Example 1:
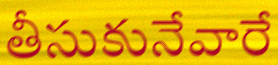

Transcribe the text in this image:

తీసుకునేవారే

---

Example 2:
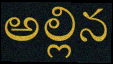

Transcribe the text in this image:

అల్లిన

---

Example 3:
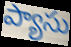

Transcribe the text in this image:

ప్యాసు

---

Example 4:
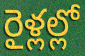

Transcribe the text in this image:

రైళ్లల్లో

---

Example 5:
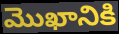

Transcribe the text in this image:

మొఖానికి